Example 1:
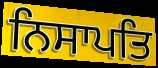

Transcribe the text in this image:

ਨਿਸਾਪਤਿ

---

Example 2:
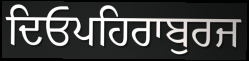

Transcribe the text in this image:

ਦਿਓਪਹਿਰਾਬੁਰਜ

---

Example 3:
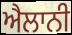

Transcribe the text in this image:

ਐਲਾਨੀ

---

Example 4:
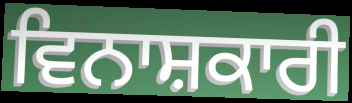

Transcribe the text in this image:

ਵਿਨਾਸ਼ਕਾਰੀ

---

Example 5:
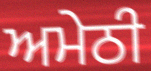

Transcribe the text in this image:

ਅਮੇਠੀ